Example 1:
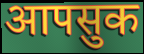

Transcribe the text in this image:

आपसुक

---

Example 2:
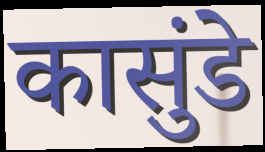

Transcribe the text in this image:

कासुंडे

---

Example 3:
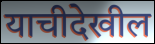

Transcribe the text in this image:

याचीदेखील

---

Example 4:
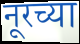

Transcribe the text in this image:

नूरच्या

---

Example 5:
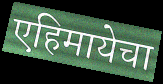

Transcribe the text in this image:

एहिमायेचा